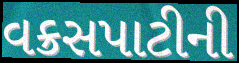
વક્રસપાટીની